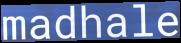
madhale